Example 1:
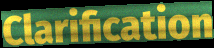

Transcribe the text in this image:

Clarification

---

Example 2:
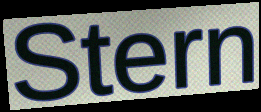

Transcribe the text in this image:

Stern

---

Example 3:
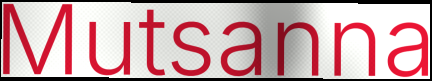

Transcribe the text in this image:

Mutsanna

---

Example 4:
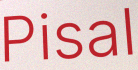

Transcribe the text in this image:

Pisal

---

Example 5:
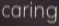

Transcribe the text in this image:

caring